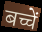
बच्चें